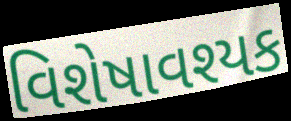
વિશેષાવશ્યક